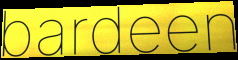
bardeen